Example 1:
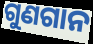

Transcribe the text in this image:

ଗୁଣଗାନ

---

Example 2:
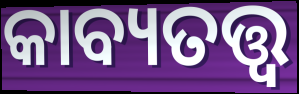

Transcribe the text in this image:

କାବ୍ୟତତ୍ତ୍ୱ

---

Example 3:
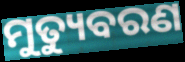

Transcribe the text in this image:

ମୁତ୍ୟୁବରଣ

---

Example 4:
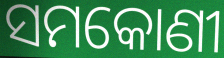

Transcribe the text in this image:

ସମକୋଣୀ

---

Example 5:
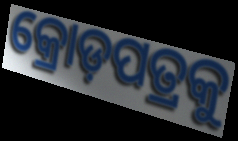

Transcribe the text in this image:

କ୍ରୋଡ଼ପତ୍ରକୁ